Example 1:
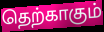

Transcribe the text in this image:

தெற்காகும்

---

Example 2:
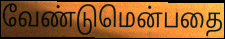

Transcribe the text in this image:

வேண்டுமென்பதை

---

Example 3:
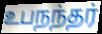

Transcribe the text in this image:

உபநந்தர்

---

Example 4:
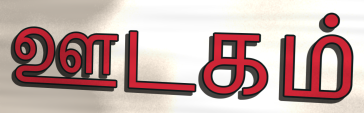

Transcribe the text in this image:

ஊடகம்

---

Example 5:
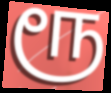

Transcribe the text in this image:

ரூ